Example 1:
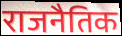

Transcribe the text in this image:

राजनैतिक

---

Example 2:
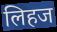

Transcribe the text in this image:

लिहज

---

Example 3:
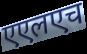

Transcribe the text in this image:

एएलएच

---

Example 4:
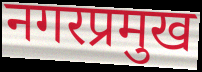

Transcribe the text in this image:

नगरप्रमुख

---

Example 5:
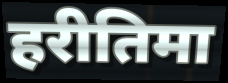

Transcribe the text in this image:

हरीतिमा